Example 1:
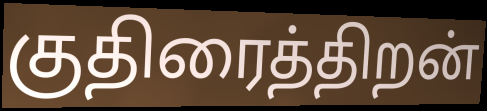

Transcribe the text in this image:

குதிரைத்திறன்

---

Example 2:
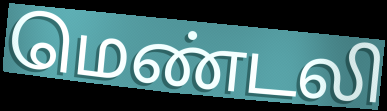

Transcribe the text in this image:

மெண்டலி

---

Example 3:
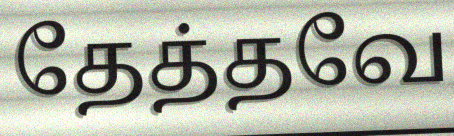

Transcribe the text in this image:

தேத்தவே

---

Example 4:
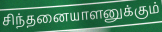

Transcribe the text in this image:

சிந்தனையாளனுக்கும்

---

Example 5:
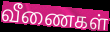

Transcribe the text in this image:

வீணைகள்